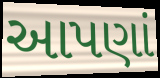
આપણાં